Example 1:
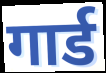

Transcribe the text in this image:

गार्ड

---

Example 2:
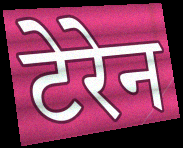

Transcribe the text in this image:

टेरेन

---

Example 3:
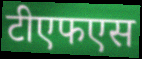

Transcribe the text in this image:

टीएफएस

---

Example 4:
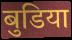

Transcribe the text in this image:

बुडिया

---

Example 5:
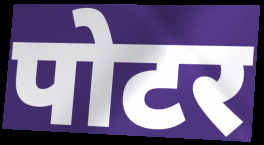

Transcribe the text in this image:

पोटर